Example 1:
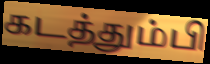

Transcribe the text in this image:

கடத்தும்பி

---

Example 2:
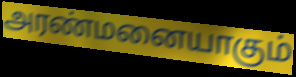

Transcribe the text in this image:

அரண்மனையாகும்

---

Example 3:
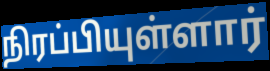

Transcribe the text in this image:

நிரப்பியுள்ளார்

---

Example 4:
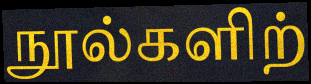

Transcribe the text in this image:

நூல்களிற்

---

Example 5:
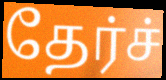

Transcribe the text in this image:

தேர்ச்